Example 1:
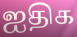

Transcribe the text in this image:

ஐதிக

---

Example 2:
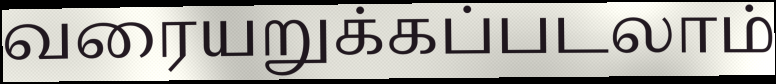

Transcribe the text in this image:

வரையறுக்கப்படலாம்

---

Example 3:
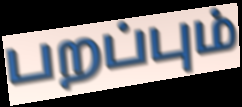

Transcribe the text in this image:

பறப்பும்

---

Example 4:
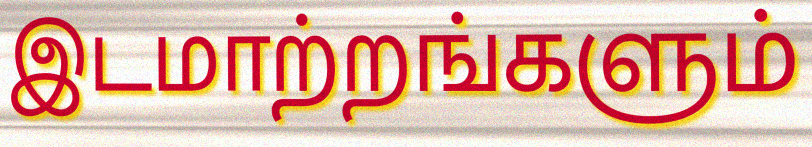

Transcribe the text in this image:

இடமாற்றங்களும்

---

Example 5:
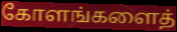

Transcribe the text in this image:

கோளங்களைத்